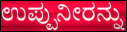
ಉಪ್ಪುನೀರನ್ನು